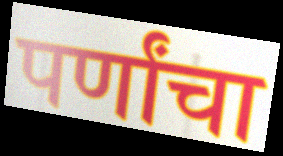
पर्णांचा